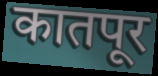
कातपूर